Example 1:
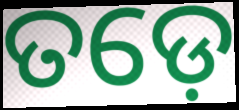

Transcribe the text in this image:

ତଡ଼େ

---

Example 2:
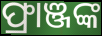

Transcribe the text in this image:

ଫ୍ରାଞ୍ଜଙ୍କ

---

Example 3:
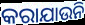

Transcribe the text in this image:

କରାଯାଉନି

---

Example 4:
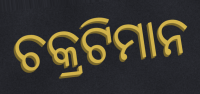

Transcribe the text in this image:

ଚକ୍ରଟିମାନ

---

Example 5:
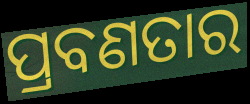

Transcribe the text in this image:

ପ୍ରବଣତାର